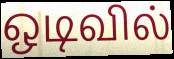
ஒடிவில்